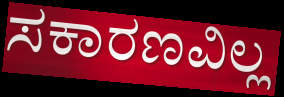
ಸಕಾರಣವಿಲ್ಲ